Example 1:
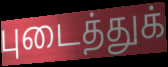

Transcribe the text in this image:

புடைத்துக்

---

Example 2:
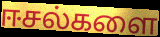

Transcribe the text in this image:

ஈசல்களை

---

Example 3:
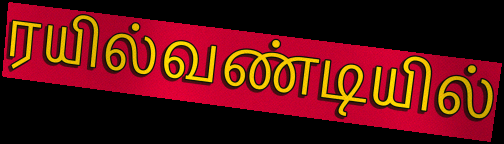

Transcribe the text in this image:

ரயில்வண்டியில்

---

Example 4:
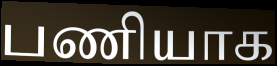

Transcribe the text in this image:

பணியாக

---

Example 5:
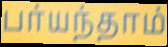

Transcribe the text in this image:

பர்யந்தாம்